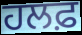
ਹਲਫ਼